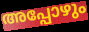
അപ്പോഴും